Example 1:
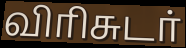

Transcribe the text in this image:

விரிசுடர்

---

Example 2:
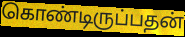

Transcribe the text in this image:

கொண்டிருப்பதன்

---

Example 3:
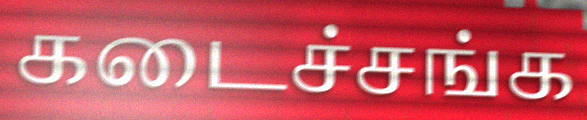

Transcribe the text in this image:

கடைச்சங்க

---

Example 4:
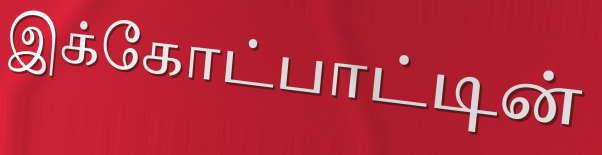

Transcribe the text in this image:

இக்கோட்பாட்டின்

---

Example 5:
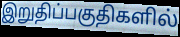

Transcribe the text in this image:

இறுதிப்பகுதிகளில்